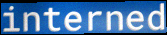
interned